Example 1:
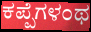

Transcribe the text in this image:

ಕಪ್ಪೆಗಳಂಥ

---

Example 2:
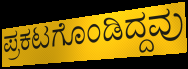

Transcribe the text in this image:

ಪ್ರಕಟಗೊಂಡಿದ್ದವು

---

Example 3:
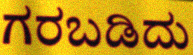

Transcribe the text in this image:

ಗರಬಡಿದು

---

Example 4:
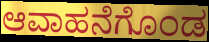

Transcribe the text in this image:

ಆವಾಹನೆಗೊಂಡ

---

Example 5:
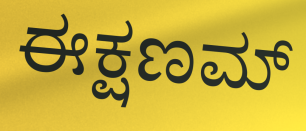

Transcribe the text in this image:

ಈಕ್ಷಣಮ್